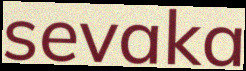
sevaka